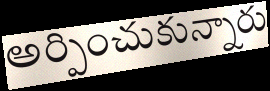
అర్పించుకున్నారు